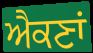
ਐਕਣਾਂ